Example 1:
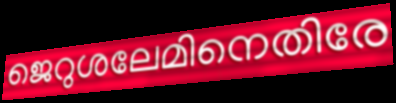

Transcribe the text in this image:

ജെറുശലേമിനെതിരേ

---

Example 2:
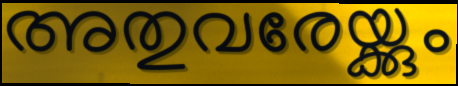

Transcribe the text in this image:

അതുവരേയ്ക്കും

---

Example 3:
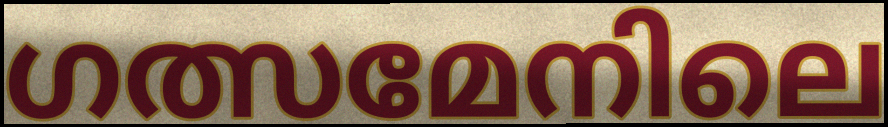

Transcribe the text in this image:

ഗത്സമേനിലെ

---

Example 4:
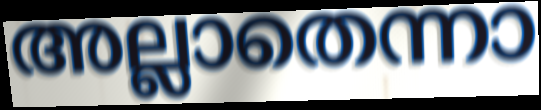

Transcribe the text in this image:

അല്ലാതെന്നാ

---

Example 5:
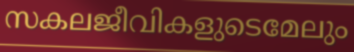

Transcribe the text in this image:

സകലജീവികളുടെമേലും